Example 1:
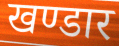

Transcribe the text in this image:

खण्डार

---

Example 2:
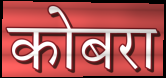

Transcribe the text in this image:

कोबरा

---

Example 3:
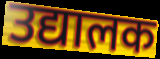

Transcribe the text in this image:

उद्यालक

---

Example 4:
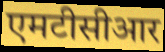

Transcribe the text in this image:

एमटीसीआर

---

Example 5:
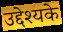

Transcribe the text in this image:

उद्देश्यके